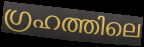
ഗ്രഹത്തിലെ